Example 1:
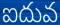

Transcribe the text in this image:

ఐదువ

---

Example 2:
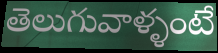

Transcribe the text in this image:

తెలుగువాళ్ళంటే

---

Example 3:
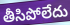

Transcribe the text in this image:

తీసిపోలేదు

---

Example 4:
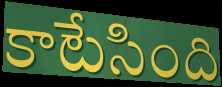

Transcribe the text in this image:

కాటేసింది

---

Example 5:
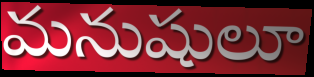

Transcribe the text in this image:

మనుషులూ